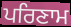
ਪਰਿਣਾਮ